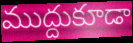
ముద్దుకూడా